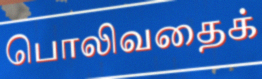
பொலிவதைக்